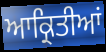
ਆਕ੍ਰਿਤੀਆਂ